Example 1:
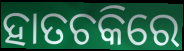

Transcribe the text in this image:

ହାତଚକିରେ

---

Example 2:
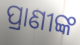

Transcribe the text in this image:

ପ୍ରାଣୀଙ୍କ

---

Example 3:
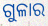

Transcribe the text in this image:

ଗୁଳାର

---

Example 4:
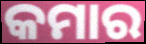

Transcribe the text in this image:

କମାର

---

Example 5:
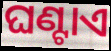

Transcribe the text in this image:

ଘଣ୍ଟାଏ